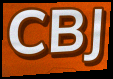
CBJ